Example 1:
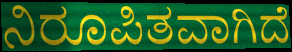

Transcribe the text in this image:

ನಿರೂಪಿತವಾಗಿದೆ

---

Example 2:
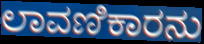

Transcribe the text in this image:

ಲಾವಣಿಕಾರನು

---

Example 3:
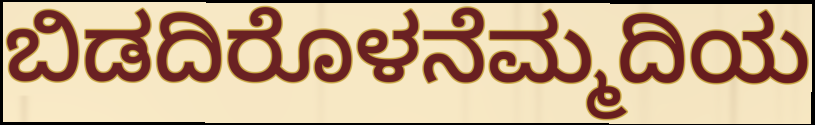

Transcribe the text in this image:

ಬಿಡದಿರೊಳನೆಮ್ಮದಿಯ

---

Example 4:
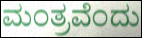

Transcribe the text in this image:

ಮಂತ್ರವೆಂದು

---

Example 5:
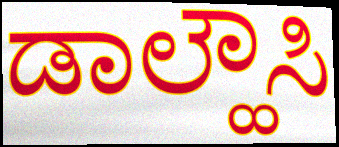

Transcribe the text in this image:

ಡಾಲ್ಹೌಸಿ